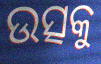
ଉତ୍ସକୁ